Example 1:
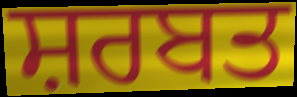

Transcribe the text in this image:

ਸ਼ਰਬਤ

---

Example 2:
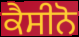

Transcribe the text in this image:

ਕੈਸੀਨੋ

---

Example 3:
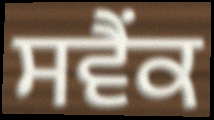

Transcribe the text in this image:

ਸਵੈਂਕ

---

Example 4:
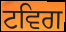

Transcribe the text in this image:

ਟਵਿਗ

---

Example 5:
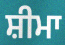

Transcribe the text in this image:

ਸ਼ੀਮਾ